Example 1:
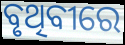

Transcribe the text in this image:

ବୃଥିବୀରେ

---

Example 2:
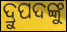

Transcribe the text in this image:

ଦ୍ରୁପଦଙ୍କୁ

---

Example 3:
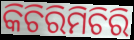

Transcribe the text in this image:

କିଚିରିମିଚିରି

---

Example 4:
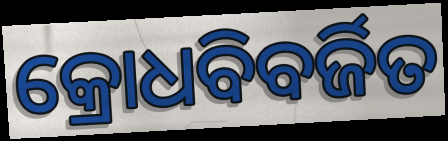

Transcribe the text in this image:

କ୍ରୋଧବିବର୍ଜିତ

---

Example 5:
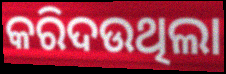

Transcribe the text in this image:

କରିଦଉଥିଲା